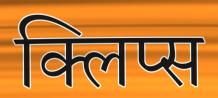
क्लिप्स